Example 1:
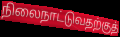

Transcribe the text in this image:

நிலைநாட்டுவதற்குத்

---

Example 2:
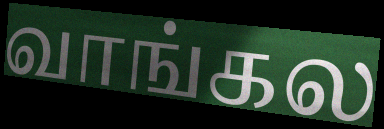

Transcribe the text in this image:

வாங்கல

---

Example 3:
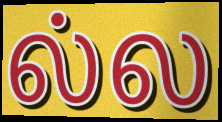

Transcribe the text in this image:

ல்ல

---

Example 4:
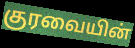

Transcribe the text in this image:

குரவையின்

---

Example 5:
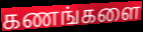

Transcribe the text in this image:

கணங்களை